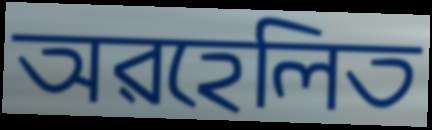
অৱহেলিত